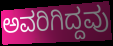
ಅವರಿಗಿದ್ದವು